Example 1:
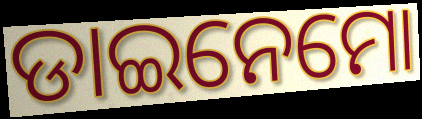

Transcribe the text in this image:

ଡାଇନେମୋ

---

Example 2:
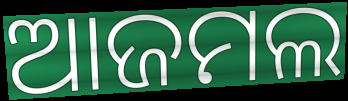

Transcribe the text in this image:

ଆଜମଲ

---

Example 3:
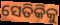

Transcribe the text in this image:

ସେତିକିକୁ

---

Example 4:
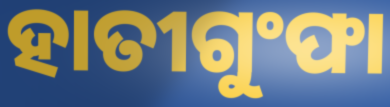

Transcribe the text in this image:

ହାତୀଗୁଂଫା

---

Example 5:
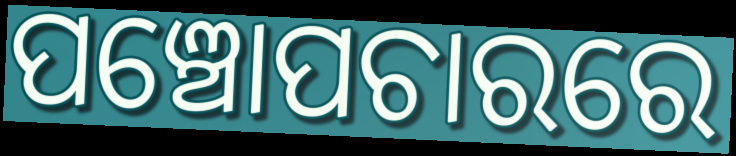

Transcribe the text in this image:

ପଞ୍ଚୋପଚାରରେ